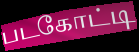
படகோட்டி